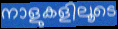
നാളുകളിലൂടെ